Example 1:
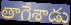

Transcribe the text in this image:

తాగేశాడు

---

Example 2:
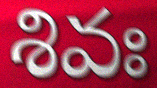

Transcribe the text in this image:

శివః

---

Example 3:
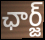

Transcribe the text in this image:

ఛార్జ్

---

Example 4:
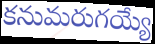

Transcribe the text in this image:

కనుమరుగయ్యే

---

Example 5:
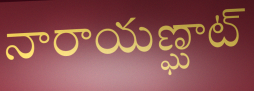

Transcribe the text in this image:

నారాయణ్ఘాట్